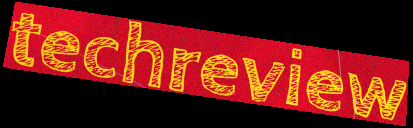
techreview